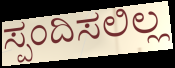
ಸ್ಪಂದಿಸಲಿಲ್ಲ